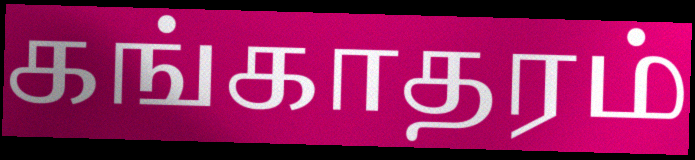
கங்காதரம்